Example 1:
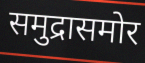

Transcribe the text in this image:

समुद्रासमोर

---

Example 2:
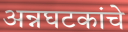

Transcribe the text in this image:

अन्नघटकांचे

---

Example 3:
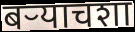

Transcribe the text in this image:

बऱ्याचशा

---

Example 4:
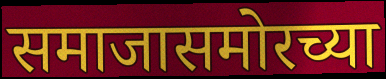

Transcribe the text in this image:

समाजासमोरच्या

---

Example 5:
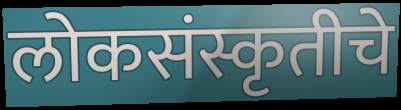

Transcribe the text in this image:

लोकसंस्कृतीचे